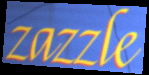
zazzle